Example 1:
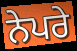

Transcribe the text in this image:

ਨੇਪਰੇ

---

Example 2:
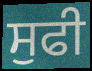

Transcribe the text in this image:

ਸੁਫੀ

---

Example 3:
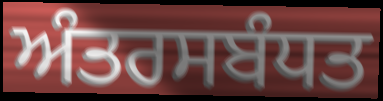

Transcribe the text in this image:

ਅੰਤਰਸਬੰਧਤ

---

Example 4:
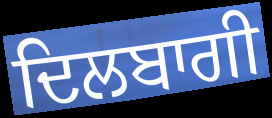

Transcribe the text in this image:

ਦਿਲਬਾਗੀ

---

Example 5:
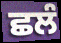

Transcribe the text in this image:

ਛਲੰ